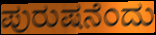
ಪುರುಷನೆಂದು